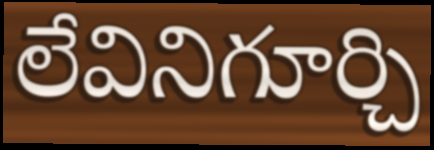
లేవినిగూర్చి